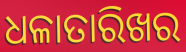
ଧଳାତାରିଖର